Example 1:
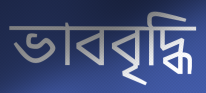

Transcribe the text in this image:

ভাববৃদ্ধি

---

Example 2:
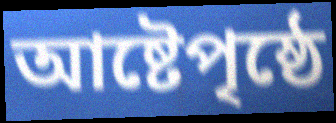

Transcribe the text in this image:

আষ্টেপৃষ্ঠে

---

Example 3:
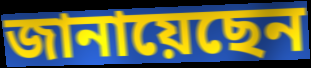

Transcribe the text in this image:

জানায়েছেন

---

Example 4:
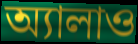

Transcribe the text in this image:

অ্যালাও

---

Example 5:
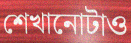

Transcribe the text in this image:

শেখানোটাও